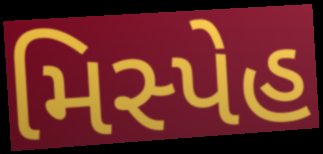
મિસ્પેહ